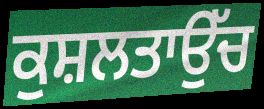
ਕੁਸ਼ਲਤਾਉੱਚ